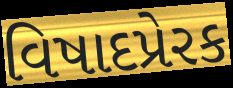
વિષાદપ્રેરક